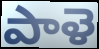
పాళె